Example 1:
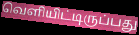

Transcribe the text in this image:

வெளியிட்டிருப்பது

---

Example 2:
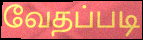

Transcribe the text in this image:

வேதப்படி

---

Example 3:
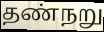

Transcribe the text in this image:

தண்நறு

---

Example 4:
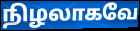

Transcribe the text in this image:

நிழலாகவே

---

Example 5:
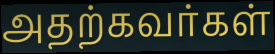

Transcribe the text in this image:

அதற்கவர்கள்